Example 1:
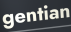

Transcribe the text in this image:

gentian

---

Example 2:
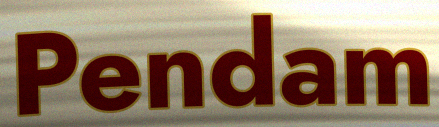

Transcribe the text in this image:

Pendam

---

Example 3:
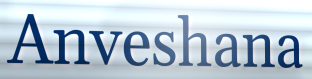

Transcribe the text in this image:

Anveshana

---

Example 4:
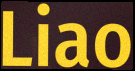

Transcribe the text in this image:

Liao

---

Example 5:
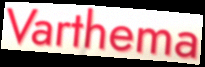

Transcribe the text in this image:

Varthema